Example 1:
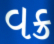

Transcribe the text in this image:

વક્ર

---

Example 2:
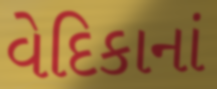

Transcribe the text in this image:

વેદિકાનાં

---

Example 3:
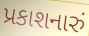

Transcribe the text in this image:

પ્રકાશનારું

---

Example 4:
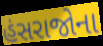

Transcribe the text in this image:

હંસરાજોના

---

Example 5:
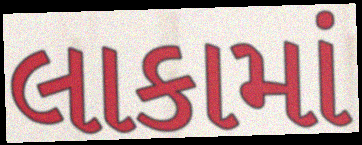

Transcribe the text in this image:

લાકામાં